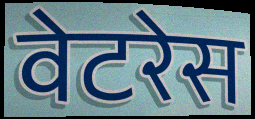
वेटरेस